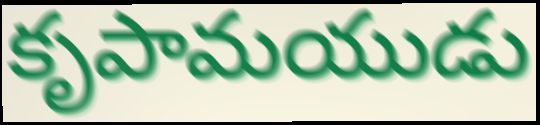
కృపామయుడు